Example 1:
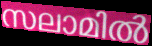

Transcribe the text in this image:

സലാമിൽ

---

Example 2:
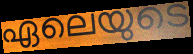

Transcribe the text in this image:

ഏലെയുടെ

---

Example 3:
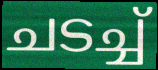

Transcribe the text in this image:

ചടച്ച്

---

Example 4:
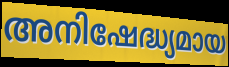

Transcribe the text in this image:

അനിഷേദ്ധ്യമായ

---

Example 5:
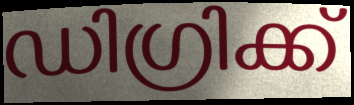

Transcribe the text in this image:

ഡിഗ്രിക്ക്